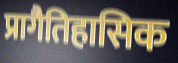
प्रागैतिहासिक